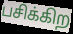
பசிக்கிற